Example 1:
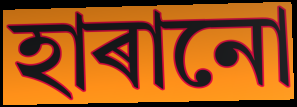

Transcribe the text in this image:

হাৰানো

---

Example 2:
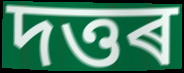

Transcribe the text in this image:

দত্তৰ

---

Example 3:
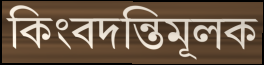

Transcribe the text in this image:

কিংবদন্তিমূলক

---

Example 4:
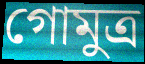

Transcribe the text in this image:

গোমুত্ৰ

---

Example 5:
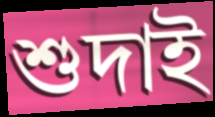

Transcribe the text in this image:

শুদাই